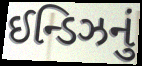
ઈન્ડિઝનું